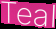
Teal